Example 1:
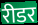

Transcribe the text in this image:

रीडर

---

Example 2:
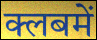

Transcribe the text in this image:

क्लबमें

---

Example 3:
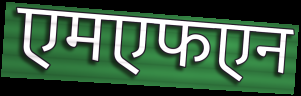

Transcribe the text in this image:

एमएफएन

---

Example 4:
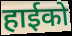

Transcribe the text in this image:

हाईको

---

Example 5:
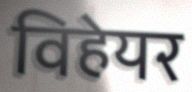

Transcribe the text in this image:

विहेयर